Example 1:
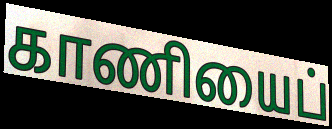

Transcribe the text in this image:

காணியைப்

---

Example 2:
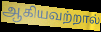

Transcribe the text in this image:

ஆகியவற்றால்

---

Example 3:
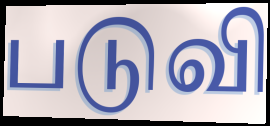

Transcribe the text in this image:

படுவி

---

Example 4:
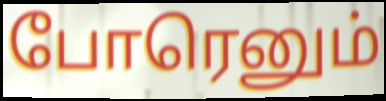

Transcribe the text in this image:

போரெனும்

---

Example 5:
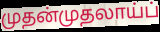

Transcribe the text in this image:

முதன்முதலாய்ப்